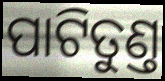
ପାଟିତୁଣ୍ତ